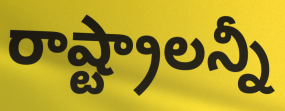
రాష్ట్రాలన్నీ